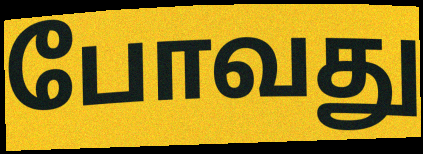
போவது